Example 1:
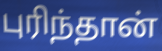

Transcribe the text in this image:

புரிந்தான்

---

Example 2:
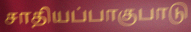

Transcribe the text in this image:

சாதியப்பாகுபாடு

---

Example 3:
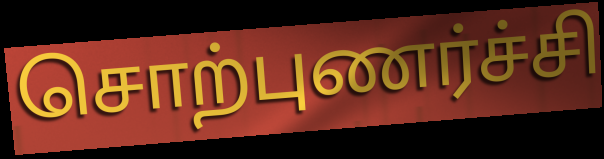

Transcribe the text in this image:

சொற்புணர்ச்சி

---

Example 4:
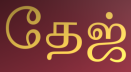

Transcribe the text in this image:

தேஜ்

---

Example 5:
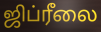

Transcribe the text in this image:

ஜிப்ரீலை